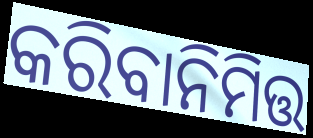
କରିବାନିମିତ୍ତ